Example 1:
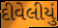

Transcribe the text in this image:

દીવેલીયું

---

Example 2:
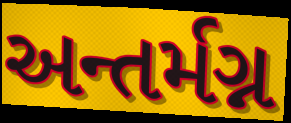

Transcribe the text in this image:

અન્તર્મગ્ન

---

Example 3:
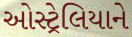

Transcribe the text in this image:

ઓસ્ટ્રેલિયાને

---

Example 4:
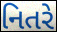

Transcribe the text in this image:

નિતરે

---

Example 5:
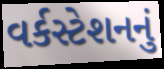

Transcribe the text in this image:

વર્કસ્ટેશનનું